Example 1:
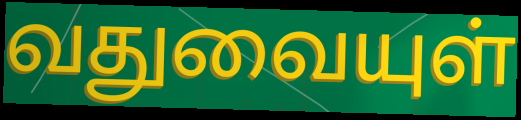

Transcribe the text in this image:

வதுவையுள்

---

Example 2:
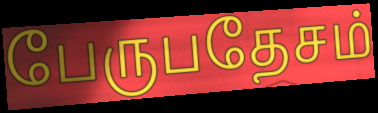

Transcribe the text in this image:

பேருபதேசம்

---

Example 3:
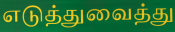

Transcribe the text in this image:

எடுத்துவைத்து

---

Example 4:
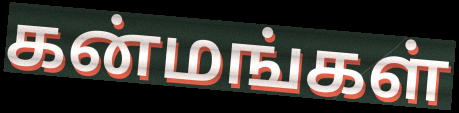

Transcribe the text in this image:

கன்மங்கள்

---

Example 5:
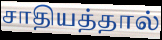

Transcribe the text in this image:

சாதியத்தால்